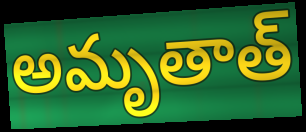
అమృతాత్